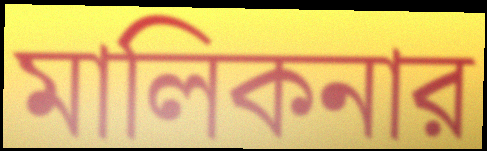
মালিকনার